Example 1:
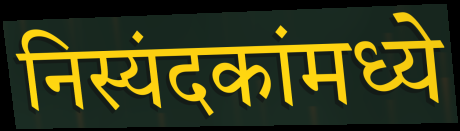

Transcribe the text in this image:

निस्यंदकांमध्ये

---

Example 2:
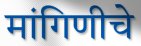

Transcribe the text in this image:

मांगिणीचे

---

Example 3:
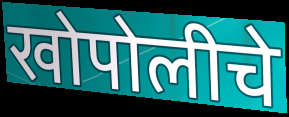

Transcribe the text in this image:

खोपोलीचे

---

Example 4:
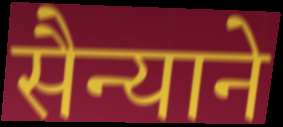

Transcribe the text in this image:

सैन्याने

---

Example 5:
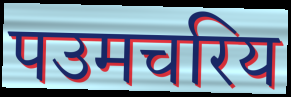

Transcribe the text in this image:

पउमचरिय